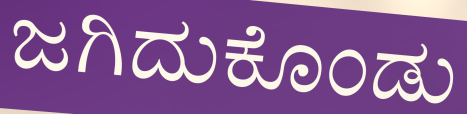
ಜಗಿದುಕೊಂಡು